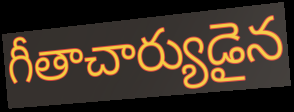
గీతాచార్యుడైన